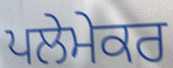
ਪਲੇਮੇਕਰ